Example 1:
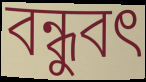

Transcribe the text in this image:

বন্ধুবৎ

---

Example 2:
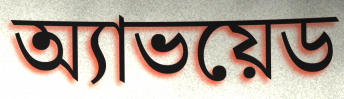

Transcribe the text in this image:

অ্যাভয়েড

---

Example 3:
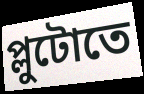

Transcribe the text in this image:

প্লুটোতে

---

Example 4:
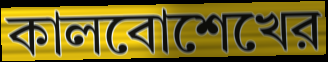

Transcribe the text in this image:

কালবোশেখের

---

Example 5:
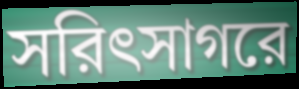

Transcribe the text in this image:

সরিৎসাগরে